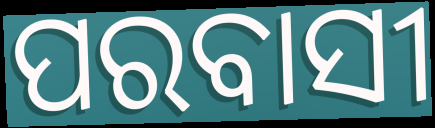
ପରବାସୀ